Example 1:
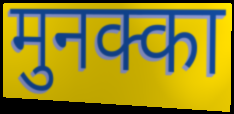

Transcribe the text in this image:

मुनक्का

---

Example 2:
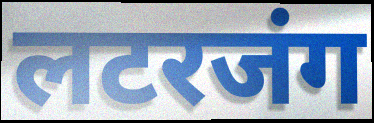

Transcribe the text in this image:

लटरजंग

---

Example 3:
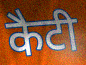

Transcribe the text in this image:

कैटी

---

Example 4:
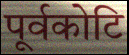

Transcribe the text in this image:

पूर्वकोटि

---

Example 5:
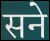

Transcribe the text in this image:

सने